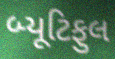
બ્યૂટિફુલ